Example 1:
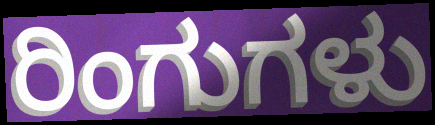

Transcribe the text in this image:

ರಿಂಗುಗಳು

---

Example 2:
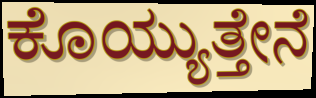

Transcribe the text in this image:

ಕೊಯ್ಯುತ್ತೇನೆ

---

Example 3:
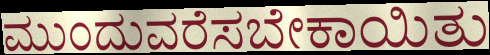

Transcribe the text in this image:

ಮುಂದುವರೆಸಬೇಕಾಯಿತು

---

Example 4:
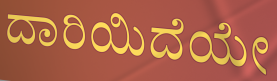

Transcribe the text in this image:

ದಾರಿಯಿದೆಯೇ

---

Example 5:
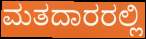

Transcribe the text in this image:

ಮತದಾರರಲ್ಲಿ